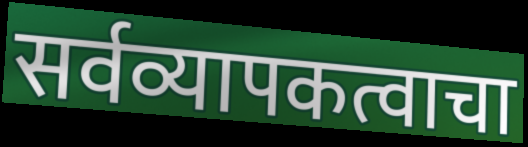
सर्वव्यापकत्वाचा